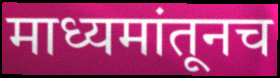
माध्यमांतूनच